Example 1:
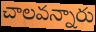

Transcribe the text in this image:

చాలవన్నారు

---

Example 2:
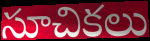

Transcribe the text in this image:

సూచికలు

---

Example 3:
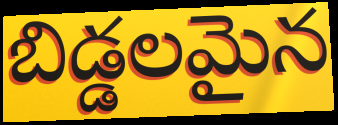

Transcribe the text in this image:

బిడ్డలమైన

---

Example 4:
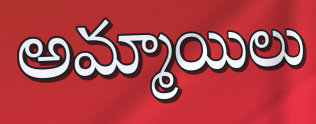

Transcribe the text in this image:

అమ్మాయిలు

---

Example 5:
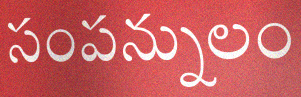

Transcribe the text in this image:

సంపన్నులం